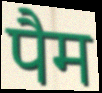
पैम